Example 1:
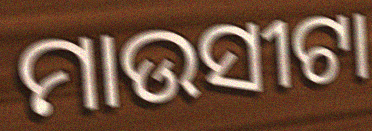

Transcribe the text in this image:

ମାଉସୀଟା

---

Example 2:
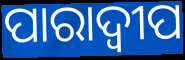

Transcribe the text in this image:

ପାରାଦ୍ୱୀପ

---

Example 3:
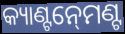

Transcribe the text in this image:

କ୍ୟାଣ୍ଟନ୍‍ମେଣ୍ଟ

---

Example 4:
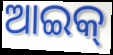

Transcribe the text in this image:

ଆଇକ୍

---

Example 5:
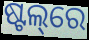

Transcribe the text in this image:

ଷ୍ଟଲ୍‌ରେ